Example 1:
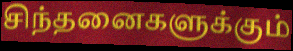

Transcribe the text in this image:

சிந்தனைகளுக்கும்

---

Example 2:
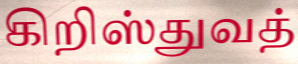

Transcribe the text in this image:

கிறிஸ்துவத்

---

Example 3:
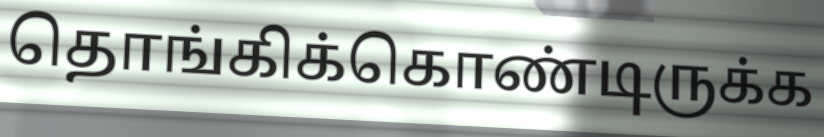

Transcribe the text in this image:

தொங்கிக்கொண்டிருக்க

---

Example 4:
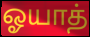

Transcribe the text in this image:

ஓயாத்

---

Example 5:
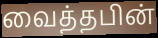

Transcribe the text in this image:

வைத்தபின்